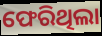
ଫେରିଥିଲା